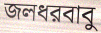
জলধরবাবু